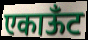
एकाऊँट